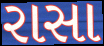
રાસા